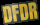
DFDR